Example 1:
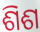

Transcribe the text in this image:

ଶିଶ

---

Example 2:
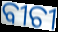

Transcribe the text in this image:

ବୀଚୀ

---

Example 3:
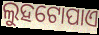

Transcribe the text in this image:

ଲୁହଟୋପାଏ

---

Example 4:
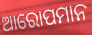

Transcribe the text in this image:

ଆରୋପମାନ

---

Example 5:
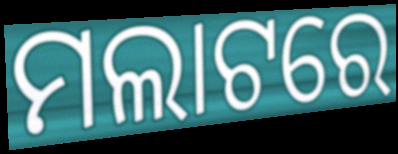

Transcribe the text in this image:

ମଲାଟରେ